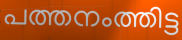
പത്തനംത്തിട്ട